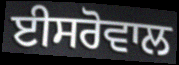
ਈਸਰੋਵਾਲ